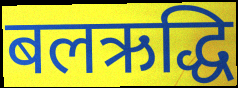
बलऋद्धि